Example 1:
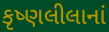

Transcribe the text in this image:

કૃષ્ણલીલાનાં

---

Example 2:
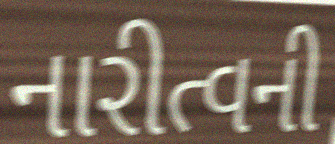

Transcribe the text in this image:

નારીત્વની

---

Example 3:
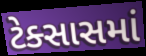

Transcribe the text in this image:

ટેક્સાસમાં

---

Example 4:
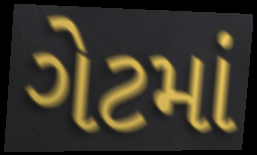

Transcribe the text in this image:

ગેટમાં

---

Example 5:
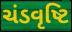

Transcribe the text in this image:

ચંડવૃષ્ટિ